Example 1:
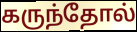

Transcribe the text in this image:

கருந்தோல்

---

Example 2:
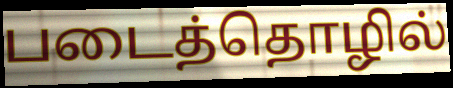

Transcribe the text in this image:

படைத்தொழில்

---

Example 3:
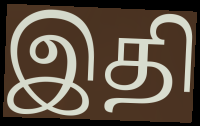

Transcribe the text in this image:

இதி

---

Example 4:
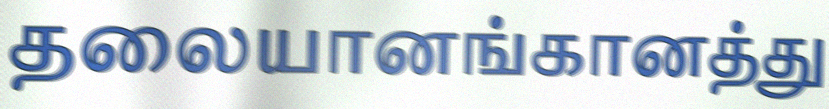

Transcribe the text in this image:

தலையானங்கானத்து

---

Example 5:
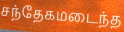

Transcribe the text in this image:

சந்தேகமடைந்த